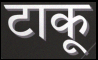
टाकू